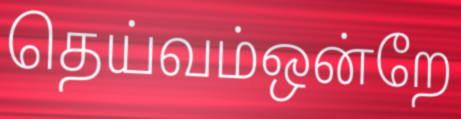
தெய்வம்ஒன்றே